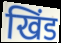
खिंड